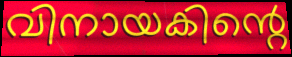
വിനായകിന്റെ